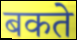
बकते